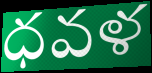
ధవళ